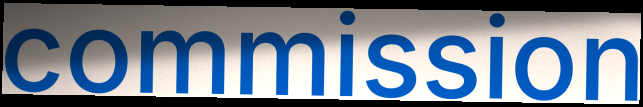
commission